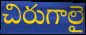
చిరుగాలై